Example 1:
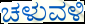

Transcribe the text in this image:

ಚಳುವಳಿ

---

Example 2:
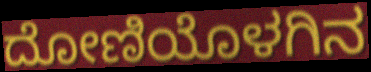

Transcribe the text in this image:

ದೋಣಿಯೊಳಗಿನ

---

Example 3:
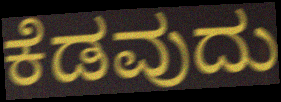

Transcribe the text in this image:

ಕೆಡವುದು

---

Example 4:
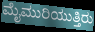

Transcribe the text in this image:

ಮೈಮುರಿಯುತ್ತಿರು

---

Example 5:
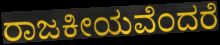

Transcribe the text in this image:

ರಾಜಕೀಯವೆಂದರೆ